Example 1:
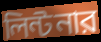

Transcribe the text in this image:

লিন্টনার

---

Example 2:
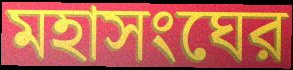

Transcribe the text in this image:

মহাসংঘের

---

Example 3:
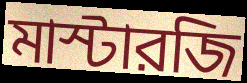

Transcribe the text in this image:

মাস্টারজি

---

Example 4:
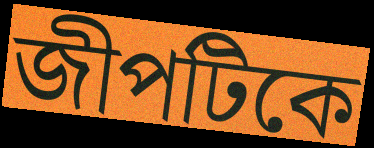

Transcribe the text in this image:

জীপটিকে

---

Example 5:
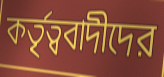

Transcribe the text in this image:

কর্তৃত্ববাদীদের